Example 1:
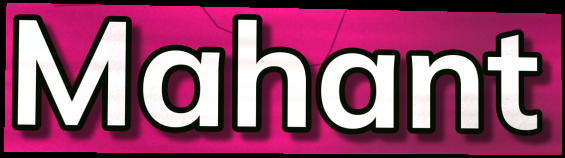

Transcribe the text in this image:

Mahant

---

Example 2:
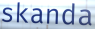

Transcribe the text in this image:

skanda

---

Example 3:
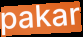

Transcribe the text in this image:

pakar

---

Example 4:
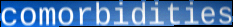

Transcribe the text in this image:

comorbidities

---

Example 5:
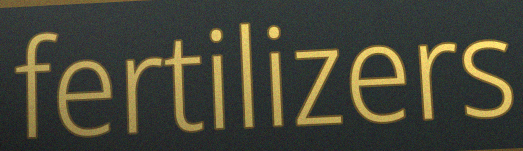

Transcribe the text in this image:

fertilizers